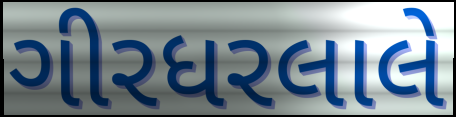
ગીરધરલાલે